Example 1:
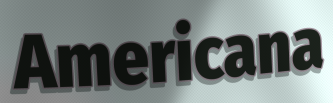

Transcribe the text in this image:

Americana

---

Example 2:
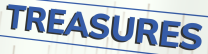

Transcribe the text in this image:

TREASURES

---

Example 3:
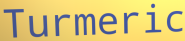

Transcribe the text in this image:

Turmeric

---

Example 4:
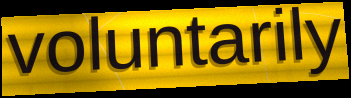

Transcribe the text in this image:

voluntarily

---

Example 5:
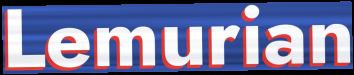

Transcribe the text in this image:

Lemurian